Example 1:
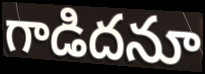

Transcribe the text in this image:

గాడిదనూ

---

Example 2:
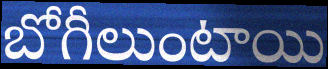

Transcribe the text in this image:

బోగీలుంటాయి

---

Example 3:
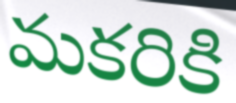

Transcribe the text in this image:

మకరికి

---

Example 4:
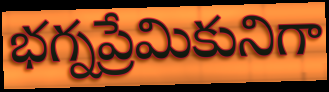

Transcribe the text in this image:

భగ్నప్రేమికునిగా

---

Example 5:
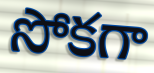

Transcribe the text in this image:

సోకగా